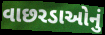
વાછરડાઓનું